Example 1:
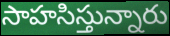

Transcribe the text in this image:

సాహసిస్తున్నారు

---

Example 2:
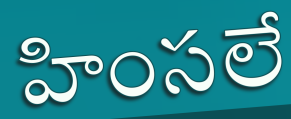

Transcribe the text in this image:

హింసలే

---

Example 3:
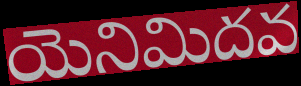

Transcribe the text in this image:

యెనిమిదవ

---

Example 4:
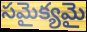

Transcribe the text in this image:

సమైక్యమై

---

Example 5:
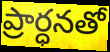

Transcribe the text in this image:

ప్రార్ధనతో